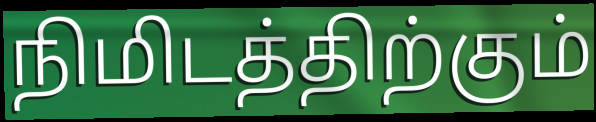
நிமிடத்திற்கும்